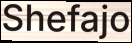
Shefajo